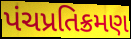
પંચપ્રતિક્રમણ